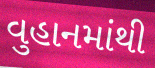
વુહાનમાંથી